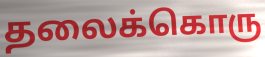
தலைக்கொரு